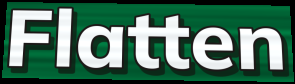
Flatten